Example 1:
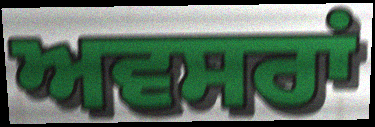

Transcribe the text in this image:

ਅਵਸਰਾਂ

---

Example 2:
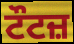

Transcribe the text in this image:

ਟੌਟਜ਼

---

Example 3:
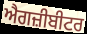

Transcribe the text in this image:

ਐਗਜ਼ੀਬੀਟਰ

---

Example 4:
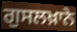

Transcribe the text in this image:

ਗੁਸਲਖ਼ਾਨੇ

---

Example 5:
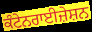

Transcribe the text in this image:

ਕੰਟੇਨਰਾਈਜ਼ੇਸ਼ਨ